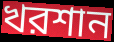
খরশান